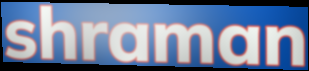
shraman